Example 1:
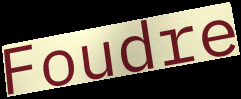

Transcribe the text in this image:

Foudre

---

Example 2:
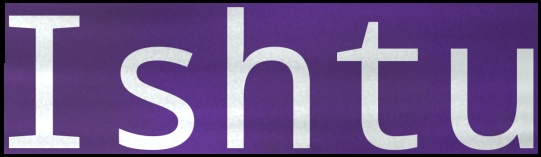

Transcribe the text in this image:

Ishtu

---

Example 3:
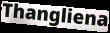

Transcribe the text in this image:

Thangliena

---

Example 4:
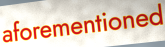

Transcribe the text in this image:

aforementioned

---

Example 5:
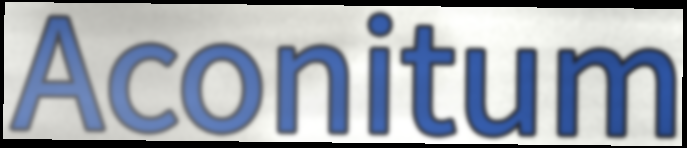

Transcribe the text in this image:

Aconitum